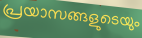
പ്രയാസങ്ങളുടെയും